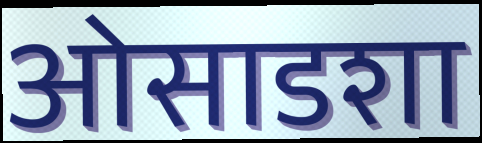
ओसाडशा